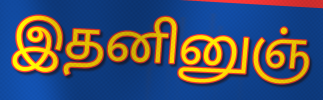
இதனினுஞ்